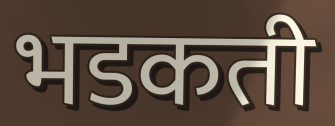
भडकती